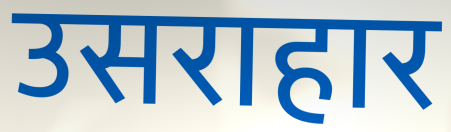
उसराहार